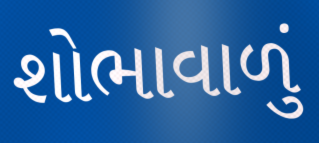
શોભાવાળું